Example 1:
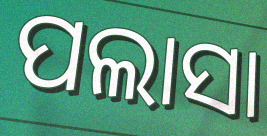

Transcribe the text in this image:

ପଲାସା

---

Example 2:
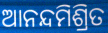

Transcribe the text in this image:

ଆନନ୍ଦମିଶ୍ରିତ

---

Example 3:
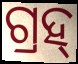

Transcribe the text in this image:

ଗ୍ରହ୍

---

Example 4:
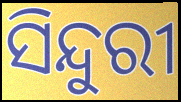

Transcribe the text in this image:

ସିନ୍ଦୁରୀ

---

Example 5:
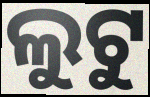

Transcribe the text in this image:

ଲୁଟୁ